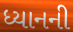
ધ્યાનની